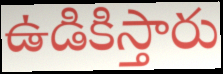
ఉడికిస్తారు